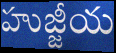
హుజ్జీయ